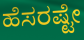
ಹೆಸರಷ್ಟೇ